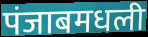
पंजाबमधली